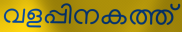
വളപ്പിനകത്ത്